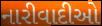
નારીવાદીઓ